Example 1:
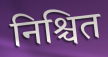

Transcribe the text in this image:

निश्चित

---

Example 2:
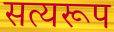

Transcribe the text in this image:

सत्यरूप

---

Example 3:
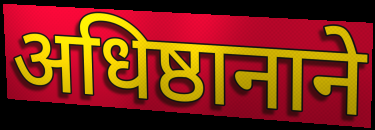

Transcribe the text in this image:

अधिष्ठानाने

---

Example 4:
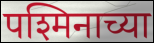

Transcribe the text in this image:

पश्मिनाच्या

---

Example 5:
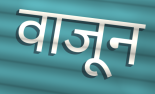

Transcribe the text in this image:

वाजून